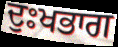
ਦੁਃਖਭਾਗ